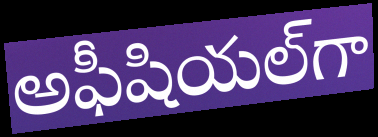
అఫీషియల్‌గా